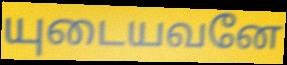
யுடையவனே